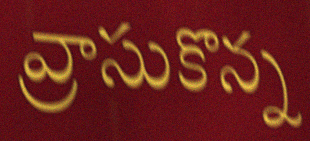
వ్రాసుకొన్న